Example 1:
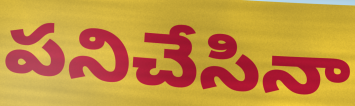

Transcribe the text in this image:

పనిచేసినా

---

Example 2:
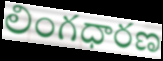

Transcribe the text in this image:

లింగధారణ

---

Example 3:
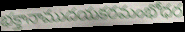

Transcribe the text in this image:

భక్తానాముదయకరమంభోధర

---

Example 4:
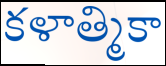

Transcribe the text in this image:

కళాత్మికా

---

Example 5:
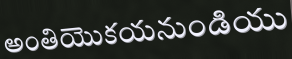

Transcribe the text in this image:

అంతియొకయనుండియు